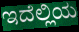
ಇದೆಲ್ಲಿಯ